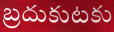
బ్రదుకుటకు